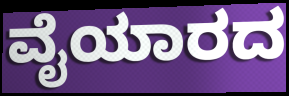
ವೈಯಾರದ